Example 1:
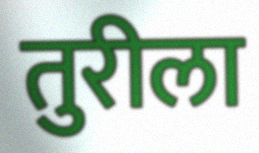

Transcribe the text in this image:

तुरीला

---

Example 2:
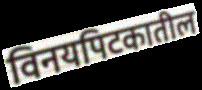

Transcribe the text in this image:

विनयपिटकातील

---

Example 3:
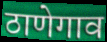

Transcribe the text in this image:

ठाणेगाव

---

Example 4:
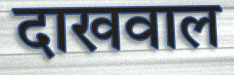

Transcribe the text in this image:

दाखवाल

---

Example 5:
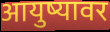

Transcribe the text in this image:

आयुष्यावर